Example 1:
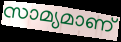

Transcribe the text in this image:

സാമ്യമാണ്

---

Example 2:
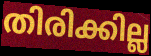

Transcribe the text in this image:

തിരിക്കില്ല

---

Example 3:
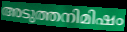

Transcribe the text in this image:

അടുത്തനിമിഷം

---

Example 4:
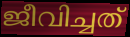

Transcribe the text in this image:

ജീവിച്ചത്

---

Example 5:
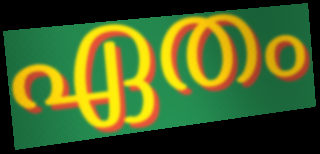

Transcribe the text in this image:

ഏതം